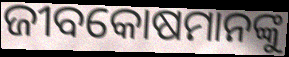
ଜୀବକୋଷମାନଙ୍କୁ